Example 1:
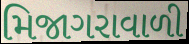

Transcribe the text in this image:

મિજાગરાવાળી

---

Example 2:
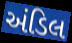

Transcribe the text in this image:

અંડિલ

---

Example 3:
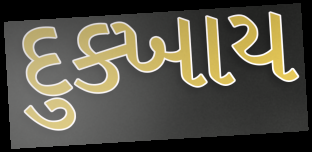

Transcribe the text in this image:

દુક્ખાય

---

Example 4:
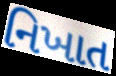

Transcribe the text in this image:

નિખાત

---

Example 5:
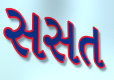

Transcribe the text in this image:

સસત